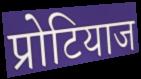
प्रोटियाज